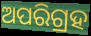
ଅପରିଗ୍ରହ